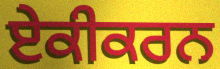
ਏਕੀਕਰਨ